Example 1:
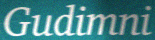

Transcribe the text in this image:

Gudimni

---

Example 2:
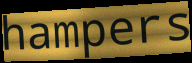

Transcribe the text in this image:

hampers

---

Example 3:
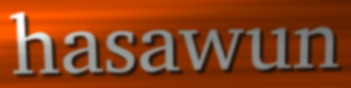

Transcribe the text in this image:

hasawun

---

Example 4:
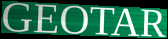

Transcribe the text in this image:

GEOTAR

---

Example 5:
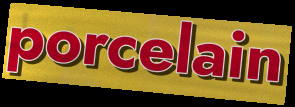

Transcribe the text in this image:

porcelain